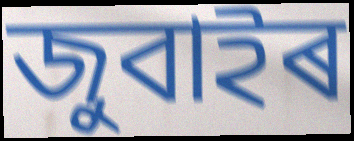
জুবাইৰ